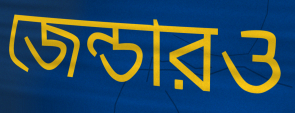
জেন্ডারও